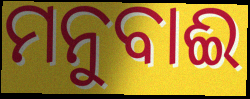
ମନୁବାଈ